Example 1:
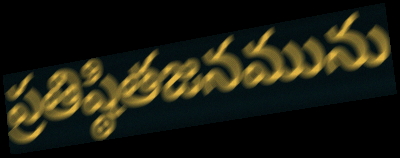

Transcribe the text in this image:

ప్రతిష్ఠితజనమును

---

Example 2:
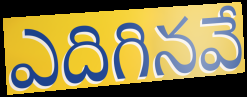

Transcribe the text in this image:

ఎదిగినవే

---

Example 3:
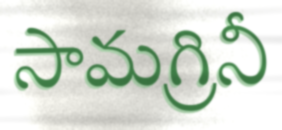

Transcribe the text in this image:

సామగ్రినీ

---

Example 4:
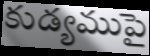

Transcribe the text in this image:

కుడ్యముపై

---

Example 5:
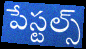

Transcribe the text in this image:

పేస్టల్స్